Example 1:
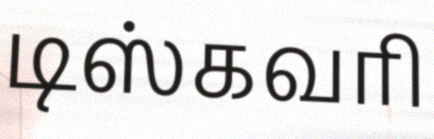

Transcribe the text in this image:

டிஸ்கவரி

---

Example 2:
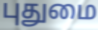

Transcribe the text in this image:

புதுமை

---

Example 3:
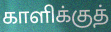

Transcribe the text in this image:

காளிக்குத்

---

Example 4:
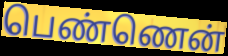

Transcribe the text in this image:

பெண்ணென்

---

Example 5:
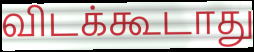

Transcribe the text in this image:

விடக்கூடாது